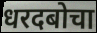
धरदबोचा